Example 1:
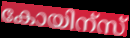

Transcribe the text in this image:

കോയിന്സ്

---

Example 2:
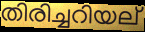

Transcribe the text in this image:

തിരിച്ചറിയല്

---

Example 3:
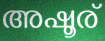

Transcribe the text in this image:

അഷൂര്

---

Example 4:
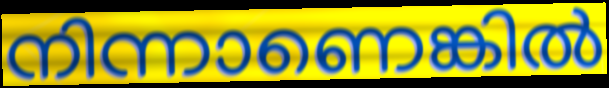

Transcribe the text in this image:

നിന്നാണെങ്കിൽ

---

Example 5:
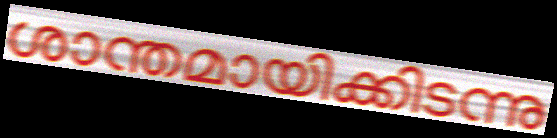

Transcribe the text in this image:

ശാന്തമായിക്കിടന്നു